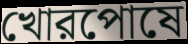
খোরপোষে